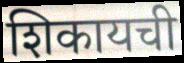
शिकायची